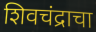
शिवचंद्राचा